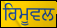
ਰਿਮੂਵਲ